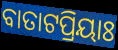
ବାତାଟପ୍ରିୟାଃ